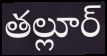
తల్లూర్